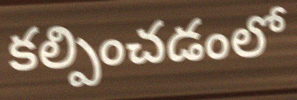
కల్పించడంలో